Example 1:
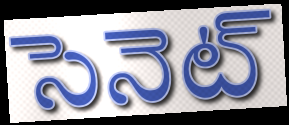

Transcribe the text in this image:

సెనెట్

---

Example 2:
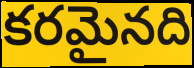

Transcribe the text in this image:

కరమైనది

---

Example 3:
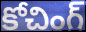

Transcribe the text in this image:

కోచింగ్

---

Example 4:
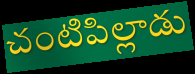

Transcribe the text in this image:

చంటిపిల్లాడు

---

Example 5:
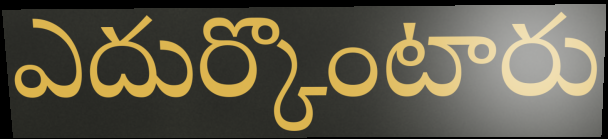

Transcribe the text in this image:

ఎదుర్కొంటారు